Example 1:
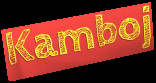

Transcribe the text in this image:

Kamboj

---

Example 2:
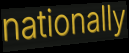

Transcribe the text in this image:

nationally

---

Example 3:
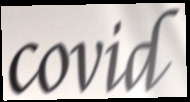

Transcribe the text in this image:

covid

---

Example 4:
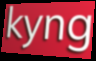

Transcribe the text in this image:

kyng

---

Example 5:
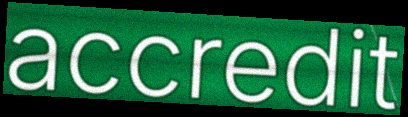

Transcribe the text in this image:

accredit